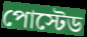
পোস্টেড